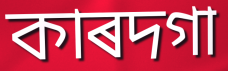
কাৰদগা